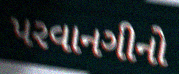
પરવાનગીનો